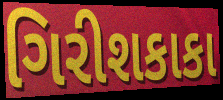
ગિરીશકાકા